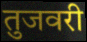
तुजवरी